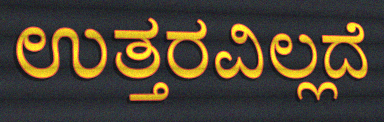
ಉತ್ತರವಿಲ್ಲದೆ